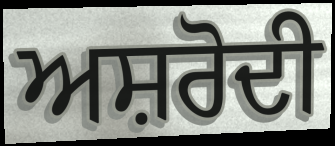
ਅਸ਼ਰੋਦੀ